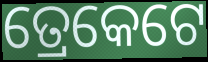
ତ୍ରେକେଟେ